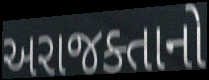
અરાજક્તાનો